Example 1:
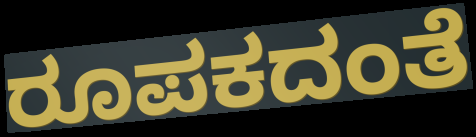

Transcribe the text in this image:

ರೂಪಕದಂತೆ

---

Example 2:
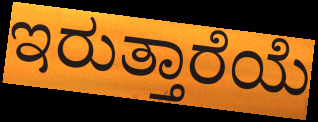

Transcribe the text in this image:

ಇರುತ್ತಾರೆಯೆ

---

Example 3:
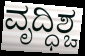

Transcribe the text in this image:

ವೃದ್ಧಿಶ್ಚ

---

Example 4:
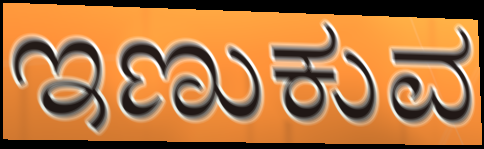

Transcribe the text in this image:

ಇಣುಕುವ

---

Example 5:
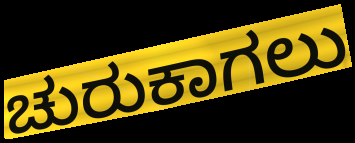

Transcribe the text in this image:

ಚುರುಕಾಗಲು